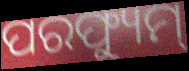
ପରଫ୍ୟୁମ୍